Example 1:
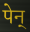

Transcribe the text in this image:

पेन्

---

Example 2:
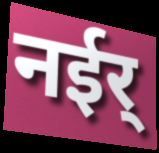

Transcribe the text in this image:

नईर्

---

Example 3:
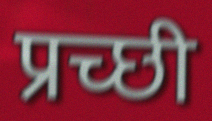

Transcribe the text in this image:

प्रच्छी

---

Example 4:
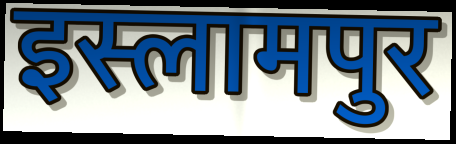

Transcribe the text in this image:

इस्लामपुर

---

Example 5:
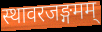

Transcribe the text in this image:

स्थावरजङ्गमम्